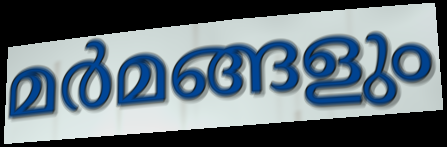
മർമങ്ങളും